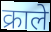
क्राले